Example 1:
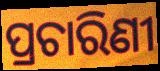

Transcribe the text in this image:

ପ୍ରଚାରିଣୀ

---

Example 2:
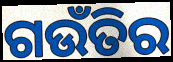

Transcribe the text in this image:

ଗଉଁତିର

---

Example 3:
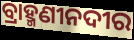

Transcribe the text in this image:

ବ୍ରାହ୍ମଣୀନଦୀର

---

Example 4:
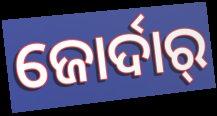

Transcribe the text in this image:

ଜୋର୍ଦାର୍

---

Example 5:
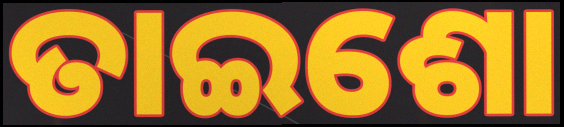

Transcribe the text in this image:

ତାଇଶୋ